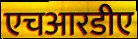
एचआरडीए